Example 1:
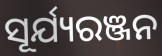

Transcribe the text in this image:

ସୂର୍ଯ୍ୟରଞ୍ଜନ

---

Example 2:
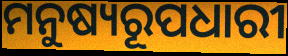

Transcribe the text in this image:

ମନୁଷ୍ୟରୂପଧାରୀ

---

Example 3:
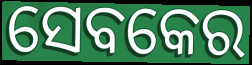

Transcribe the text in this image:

ସେବକେର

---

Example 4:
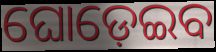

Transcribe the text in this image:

ଘୋଡ଼େଇବ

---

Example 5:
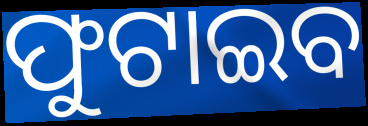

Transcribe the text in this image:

ଫୁଟାଇବ